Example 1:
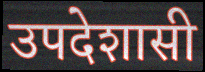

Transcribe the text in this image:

उपदेशासी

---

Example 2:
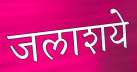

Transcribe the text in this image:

जलाशये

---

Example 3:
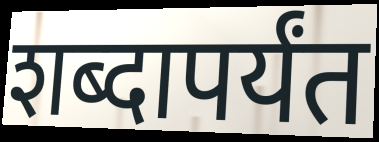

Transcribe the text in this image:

शब्दापर्यंत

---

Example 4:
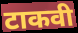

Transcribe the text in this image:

टाकवी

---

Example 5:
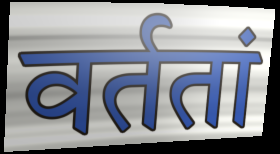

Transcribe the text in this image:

वर्ततां